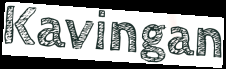
Kavingan